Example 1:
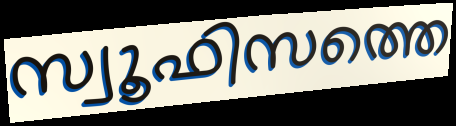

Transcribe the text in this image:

സ്വൂഫിസത്തെ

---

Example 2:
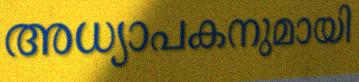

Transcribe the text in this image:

അധ്യാപകനുമായി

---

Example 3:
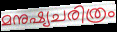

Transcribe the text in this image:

മനുഷ്യചരിത്രം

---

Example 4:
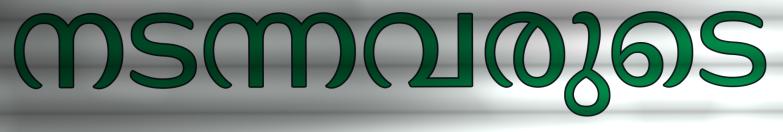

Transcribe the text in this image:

നടന്നവരുടെ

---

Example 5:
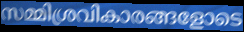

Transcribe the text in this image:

സമ്മിശ്രവികാരങ്ങളോടെ